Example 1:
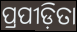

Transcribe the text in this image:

ପ୍ରପୀଡ଼ିତା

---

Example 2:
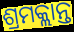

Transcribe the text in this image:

ଶ୍ରମକ୍ଲାନ୍ତ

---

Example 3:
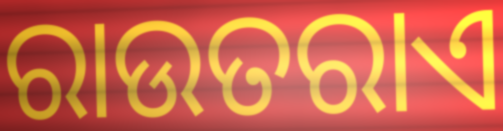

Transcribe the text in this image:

ରାଉତରାଏ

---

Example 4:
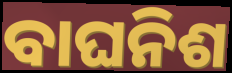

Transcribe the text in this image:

ବାଘନିଶ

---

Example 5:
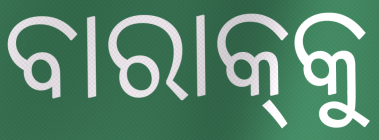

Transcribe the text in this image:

ବାରାକ୍‌କୁ